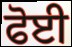
ਫੋਈ